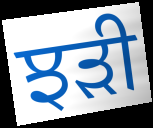
ਝੜੀ